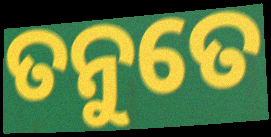
ତନୁତେ